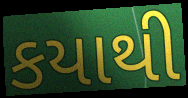
કયાથી